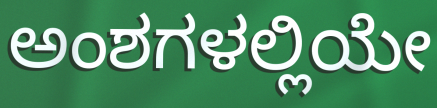
ಅಂಶಗಳಲ್ಲಿಯೇ